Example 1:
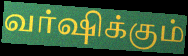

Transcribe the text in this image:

வர்ஷிக்கும்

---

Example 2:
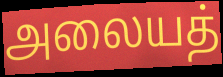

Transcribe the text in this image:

அலையத்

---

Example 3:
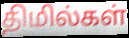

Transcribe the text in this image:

திமில்கள்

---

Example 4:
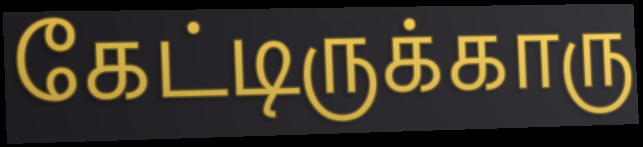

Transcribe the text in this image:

கேட்டிருக்காரு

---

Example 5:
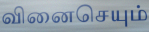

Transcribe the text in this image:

வினைசெயும்